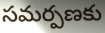
సమర్పణకు